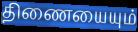
திணையையும்